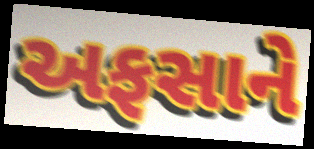
અફસાને